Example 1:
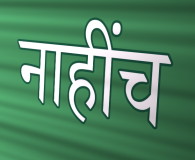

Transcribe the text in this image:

नाहींच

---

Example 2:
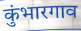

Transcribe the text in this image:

कुंभारगाव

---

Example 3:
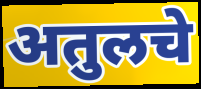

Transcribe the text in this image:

अतुलचे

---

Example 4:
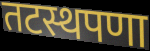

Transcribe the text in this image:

तटस्थपणा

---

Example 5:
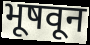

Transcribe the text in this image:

भूषवून